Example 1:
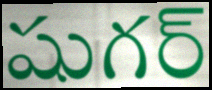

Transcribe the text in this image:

షుగర్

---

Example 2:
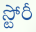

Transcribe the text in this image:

స్టోరీ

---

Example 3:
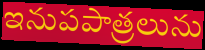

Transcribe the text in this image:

ఇనుపపాత్రలును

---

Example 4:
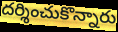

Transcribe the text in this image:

దర్శించుకొన్నారు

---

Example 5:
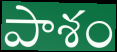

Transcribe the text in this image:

పాశం